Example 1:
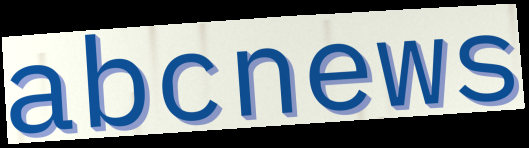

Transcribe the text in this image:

abcnews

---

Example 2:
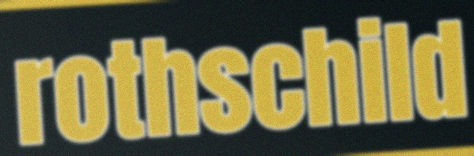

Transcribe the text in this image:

rothschild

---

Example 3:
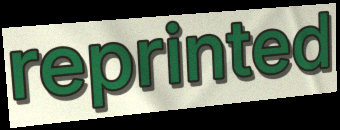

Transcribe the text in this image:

reprinted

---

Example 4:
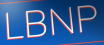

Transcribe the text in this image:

LBNP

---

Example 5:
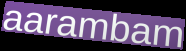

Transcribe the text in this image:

aarambam